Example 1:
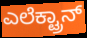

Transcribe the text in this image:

ಎಲೆಕ್ಟ್ರಾನ್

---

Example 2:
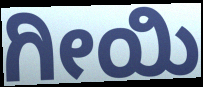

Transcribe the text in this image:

ಗೀಯಿ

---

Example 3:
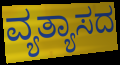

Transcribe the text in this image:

ವ್ಯತ್ಯಾಸದ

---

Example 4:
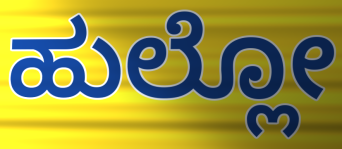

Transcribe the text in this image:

ಹುಲ್ಲೋ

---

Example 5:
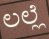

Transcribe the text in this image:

ಲಲ್ಲೆ